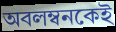
অবলম্বনকেই